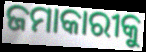
ଜମାକାରୀକୁ